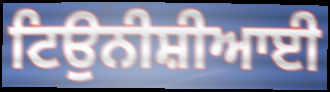
ਟਿਉਨੀਸ਼ੀਆਈ